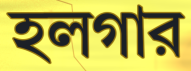
হলগার